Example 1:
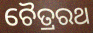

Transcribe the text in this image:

ଚୈତ୍ରରଥ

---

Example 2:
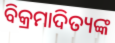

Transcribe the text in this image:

ବିକ୍ରମାଦିତ୍ୟଙ୍କ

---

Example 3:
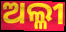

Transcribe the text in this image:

ଅଲ୍ଳୀ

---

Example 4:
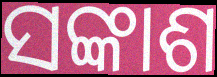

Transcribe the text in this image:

ସଙ୍କାଶ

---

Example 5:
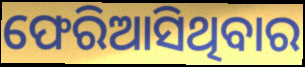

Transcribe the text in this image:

ଫେରିଆସିଥିବାର